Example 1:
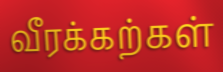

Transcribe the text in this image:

வீரக்கற்கள்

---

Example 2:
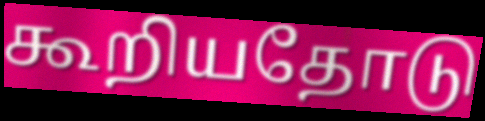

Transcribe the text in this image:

கூறியதோடு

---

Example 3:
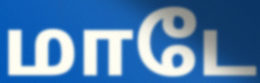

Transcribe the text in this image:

மாடே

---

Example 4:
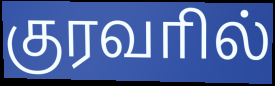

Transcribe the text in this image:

குரவரில்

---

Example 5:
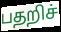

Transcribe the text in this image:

பதறிச்